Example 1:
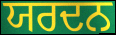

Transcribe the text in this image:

ਯਰਦਨ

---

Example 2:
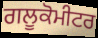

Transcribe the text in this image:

ਗਲੂਕੋਮੀਟਰ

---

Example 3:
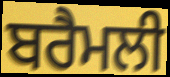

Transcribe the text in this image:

ਬਰੈਮਲੀ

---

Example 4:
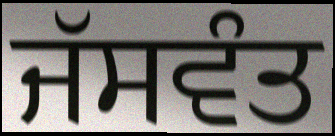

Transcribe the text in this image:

ਜੱਸਵੰਤ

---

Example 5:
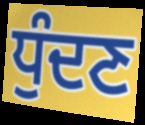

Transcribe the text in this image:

ਧੁੰਦਣ